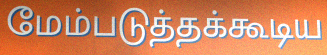
மேம்படுத்தக்கூடிய